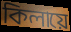
কিলায়ে